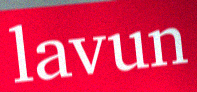
lavun